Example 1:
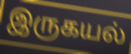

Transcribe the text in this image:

இருகயல்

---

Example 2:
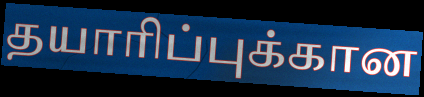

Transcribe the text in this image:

தயாரிப்புக்கான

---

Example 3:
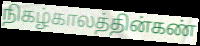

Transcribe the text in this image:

நிகழ்காலத்தின்கண்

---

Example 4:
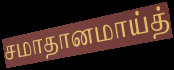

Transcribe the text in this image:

சமாதானமாய்த்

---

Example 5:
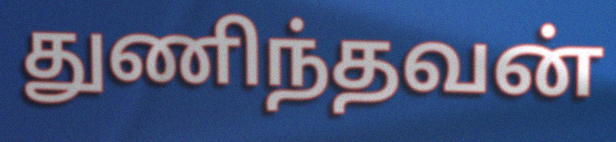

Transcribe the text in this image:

துணிந்தவன்